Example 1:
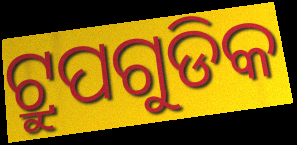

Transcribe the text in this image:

ଟ୍ରୁପଗୁଡିକ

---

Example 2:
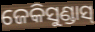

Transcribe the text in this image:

ଜେକିସୁଣ୍ଡାସ୍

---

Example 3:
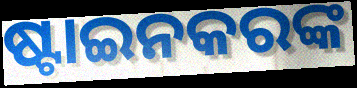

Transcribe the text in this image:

ଷ୍ଟାଇନକରଙ୍କ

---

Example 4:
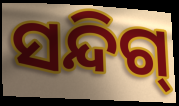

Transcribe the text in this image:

ସନ୍ଦିଗ୍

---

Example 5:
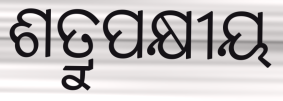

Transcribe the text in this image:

ଶତ୍ରୁପକ୍ଷୀୟ